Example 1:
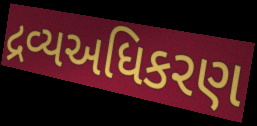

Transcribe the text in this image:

દ્રવ્યઅધિકરણ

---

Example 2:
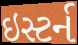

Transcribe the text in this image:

ઇસ્ટર્ન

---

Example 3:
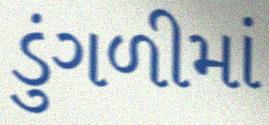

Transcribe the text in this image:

ડુંગળીમાં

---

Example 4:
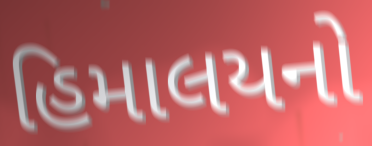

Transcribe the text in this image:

હિમાલયનો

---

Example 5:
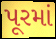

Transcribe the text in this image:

પૂરમાં